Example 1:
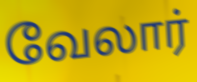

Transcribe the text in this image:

வேலார்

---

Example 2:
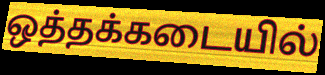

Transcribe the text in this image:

ஒத்தக்கடையில்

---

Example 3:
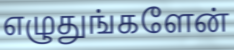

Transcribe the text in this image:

எழுதுங்களேன்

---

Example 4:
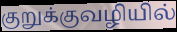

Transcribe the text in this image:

குறுக்குவழியில்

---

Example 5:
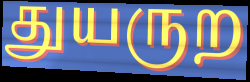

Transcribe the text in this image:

துயருற